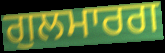
ਗੁਲਮਾਰਗ